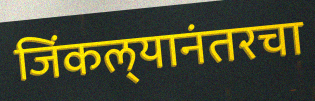
जिंकल्यानंतरचा